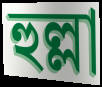
হুল্লা